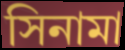
সিনামা